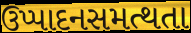
ઉપ્પાદનસમત્થતા